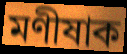
মণীষাক